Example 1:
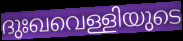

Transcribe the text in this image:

ദുഃഖവെള്ളിയുടെ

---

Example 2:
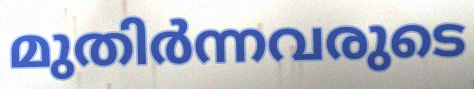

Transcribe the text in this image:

മുതിർന്നവരുടെ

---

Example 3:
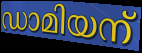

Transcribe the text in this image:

ഡാമിയന്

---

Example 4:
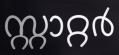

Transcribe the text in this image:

സ്റ്റാറ്റർ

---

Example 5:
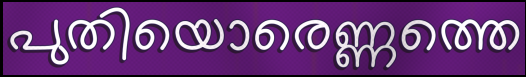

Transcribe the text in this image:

പുതിയൊരെണ്ണത്തെ